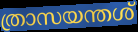
ത്രാസയന്തശ്